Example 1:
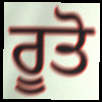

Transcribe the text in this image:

ਰੂਤੋ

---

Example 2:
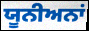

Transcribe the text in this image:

ਯੂਨੀਅਨਾਂ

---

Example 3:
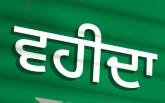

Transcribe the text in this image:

ਵਹੀਦਾ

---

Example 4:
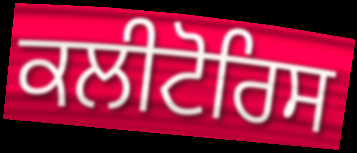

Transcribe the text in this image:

ਕਲੀਟੋਰਿਸ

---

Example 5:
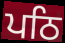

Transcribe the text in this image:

ਪਠਿ